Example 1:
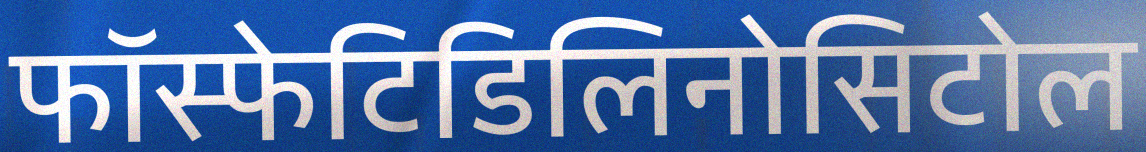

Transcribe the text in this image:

फॉस्फेटिडिलिनोसिटोल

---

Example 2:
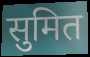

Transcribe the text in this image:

सुमित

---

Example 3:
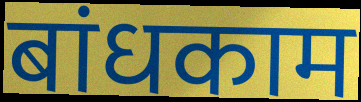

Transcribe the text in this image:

बांधकाम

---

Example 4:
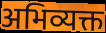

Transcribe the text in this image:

अभिव्यक्त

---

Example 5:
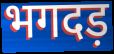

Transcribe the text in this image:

भगदड़